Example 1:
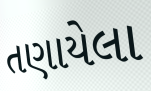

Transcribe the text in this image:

તણાયેલા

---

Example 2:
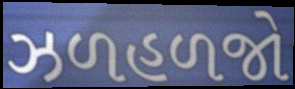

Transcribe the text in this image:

ઝળહળજો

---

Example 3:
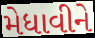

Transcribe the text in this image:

મેધાવીને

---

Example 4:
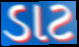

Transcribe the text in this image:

ડાટ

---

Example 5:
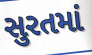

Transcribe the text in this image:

સુરતમાં